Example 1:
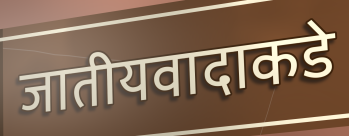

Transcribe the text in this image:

जातीयवादाकडे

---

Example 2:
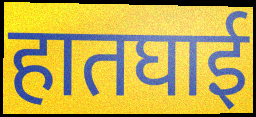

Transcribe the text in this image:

हातघाई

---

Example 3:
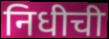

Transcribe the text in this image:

निधीची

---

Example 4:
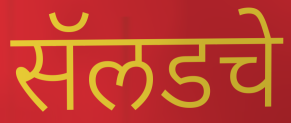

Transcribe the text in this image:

सॅलडचे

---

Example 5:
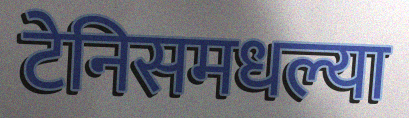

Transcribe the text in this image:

टेनिसमधल्या